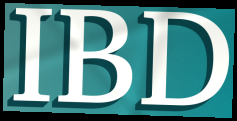
IBD